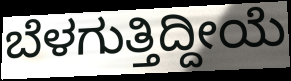
ಬೆಳಗುತ್ತಿದ್ದೀಯೆ